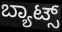
ಬ್ಯಾಟ್ಸ್